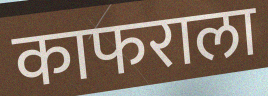
काफराला